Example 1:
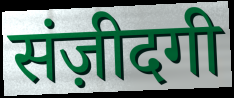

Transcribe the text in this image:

संज़ीदगी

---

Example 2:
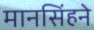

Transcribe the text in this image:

मानसिंहने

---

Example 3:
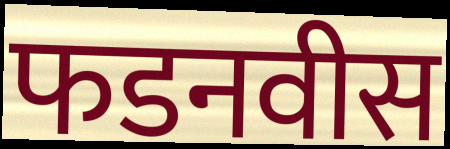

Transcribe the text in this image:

फडनवीस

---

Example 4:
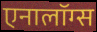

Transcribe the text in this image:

एनालॉग्स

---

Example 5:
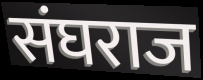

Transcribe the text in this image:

संघराज